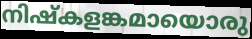
നിഷ്കളങ്കമായൊരു